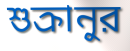
শুক্রানুর